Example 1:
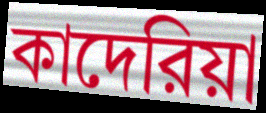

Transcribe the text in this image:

কাদেরিয়া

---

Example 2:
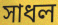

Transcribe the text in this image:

সাধল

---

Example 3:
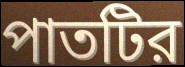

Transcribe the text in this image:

পাতটির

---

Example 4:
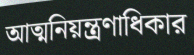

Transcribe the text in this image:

আত্মনিয়ন্ত্রণাধিকার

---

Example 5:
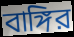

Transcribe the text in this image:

বাঙ্গির